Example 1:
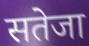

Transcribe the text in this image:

सतेजा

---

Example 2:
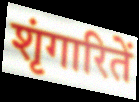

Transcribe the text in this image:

शृंगारितें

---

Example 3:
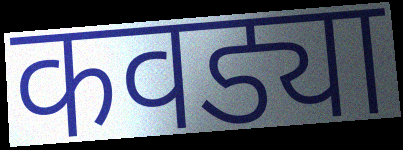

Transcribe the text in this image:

कवड्या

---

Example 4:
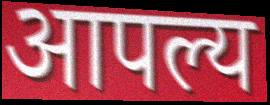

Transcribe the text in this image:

आपल्य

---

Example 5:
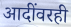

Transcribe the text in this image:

आदींवरही